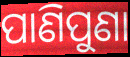
ପାଣିପୁଣା